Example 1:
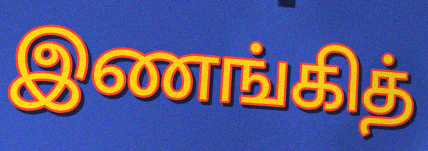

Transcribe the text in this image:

இணங்கித்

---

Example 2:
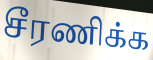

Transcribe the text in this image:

சீரணிக்க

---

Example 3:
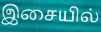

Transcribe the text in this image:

இசையில்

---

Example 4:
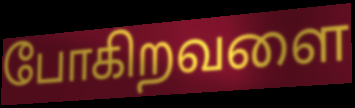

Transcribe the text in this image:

போகிறவளை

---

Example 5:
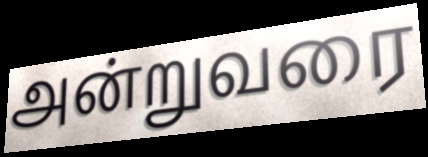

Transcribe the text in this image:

அன்றுவரை